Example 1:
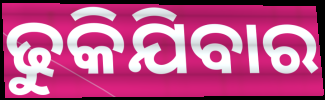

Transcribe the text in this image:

ଢୁକିଯିବାର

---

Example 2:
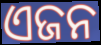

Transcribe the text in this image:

ଏଜନ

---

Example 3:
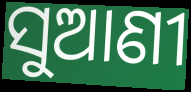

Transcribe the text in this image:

ସୁଆଣୀ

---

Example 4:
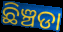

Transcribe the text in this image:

ଛିଞ୍ଚଡା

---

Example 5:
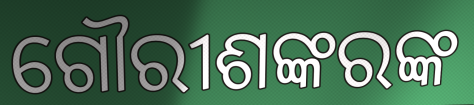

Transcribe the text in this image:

ଗୌରୀଶଙ୍କରଙ୍କ